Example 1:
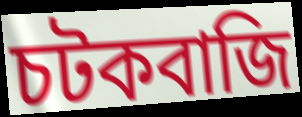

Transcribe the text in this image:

চটকবাজি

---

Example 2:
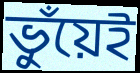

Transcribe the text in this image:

ভুঁয়েই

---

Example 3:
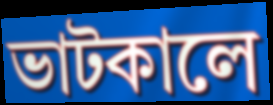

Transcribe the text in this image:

ভাটকালে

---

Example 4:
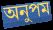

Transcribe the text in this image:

অনুপম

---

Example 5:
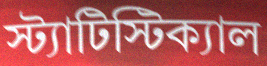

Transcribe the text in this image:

স্ট্যাটিস্টিক্যাল